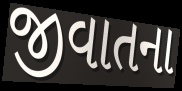
જીવાતના